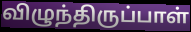
விழுந்திருப்பாள்